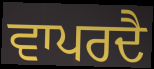
ਵਾਪਰਦੈ